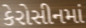
કેરોસીનમાં